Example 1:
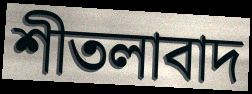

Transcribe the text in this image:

শীতলাবাদ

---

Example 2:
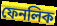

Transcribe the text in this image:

ফেনলিক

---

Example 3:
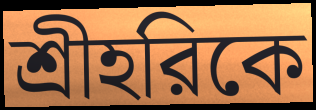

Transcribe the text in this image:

শ্রীহরিকে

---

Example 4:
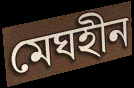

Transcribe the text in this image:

মেঘহীন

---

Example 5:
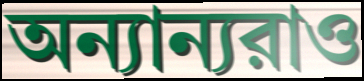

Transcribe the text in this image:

অন্যান্যরাও